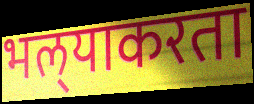
भल्याकरता